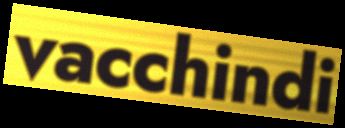
vacchindi